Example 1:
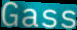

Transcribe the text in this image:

Gass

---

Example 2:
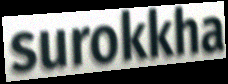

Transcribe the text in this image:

surokkha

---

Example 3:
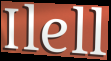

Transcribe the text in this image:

Ilell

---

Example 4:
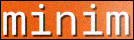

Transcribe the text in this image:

minim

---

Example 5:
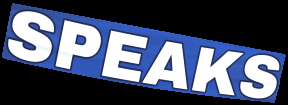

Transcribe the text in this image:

SPEAKS